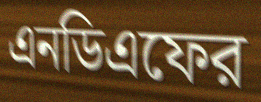
এনডিএফের